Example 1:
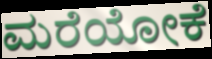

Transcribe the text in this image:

ಮರೆಯೋಕೆ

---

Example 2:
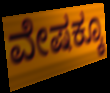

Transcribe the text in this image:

ವೇಷಕ್ಕೂ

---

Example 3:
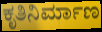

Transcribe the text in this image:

ಕೃತಿನಿರ್ಮಾಣ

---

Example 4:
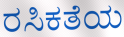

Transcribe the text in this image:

ರಸಿಕತೆಯ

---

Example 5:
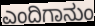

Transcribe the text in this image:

ಎಂದಿಗಾನುಂ